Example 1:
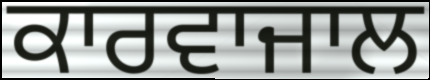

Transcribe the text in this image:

ਕਾਰਵਾਜਾਲ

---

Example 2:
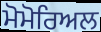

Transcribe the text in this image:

ਮੋਮੋਰਿਅਲ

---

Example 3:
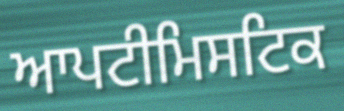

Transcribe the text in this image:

ਆਪਟੀਮਿਸਟਿਕ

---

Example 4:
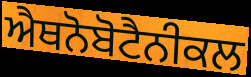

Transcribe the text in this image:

ਐਥਨੋਬੋਟੈਨੀਕਲ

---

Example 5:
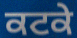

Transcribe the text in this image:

ਕਟਕੇ